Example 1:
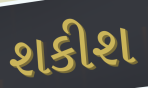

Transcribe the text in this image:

શકીશ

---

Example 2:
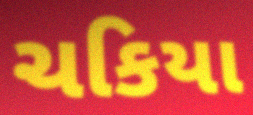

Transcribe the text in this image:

ચકિયા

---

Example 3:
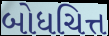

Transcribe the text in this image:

બોધચિત્ત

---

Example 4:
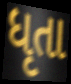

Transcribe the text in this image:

ધૃતા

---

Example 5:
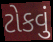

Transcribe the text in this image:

ટોકવું